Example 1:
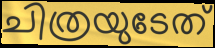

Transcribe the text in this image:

ചിത്രയുടേത്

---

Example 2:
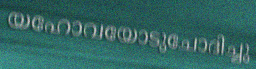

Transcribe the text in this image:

യഹോവയോടുചോദിച്ചു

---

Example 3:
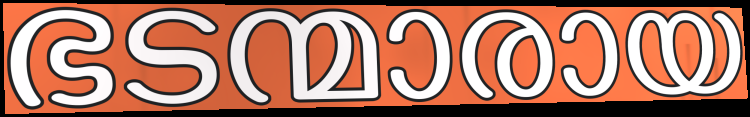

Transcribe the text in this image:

ഭടന്മാരായ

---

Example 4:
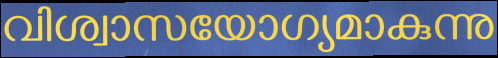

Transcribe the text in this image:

വിശ്വാസയോഗ്യമാകുന്നു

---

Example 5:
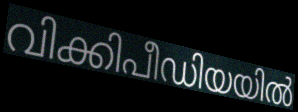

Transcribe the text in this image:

വിക്കിപീഡിയയിൽ